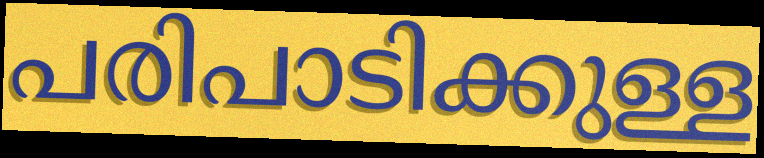
പരിപാടിക്കുള്ള